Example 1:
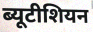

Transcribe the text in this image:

ब्यूटीशियन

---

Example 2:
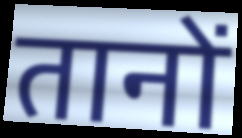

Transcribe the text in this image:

तानों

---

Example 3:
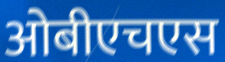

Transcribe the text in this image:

ओबीएचएस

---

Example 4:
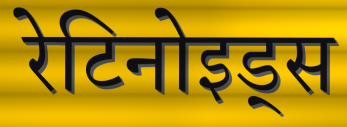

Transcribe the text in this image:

रेटिनोइड्स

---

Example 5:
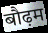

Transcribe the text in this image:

बौढ़म